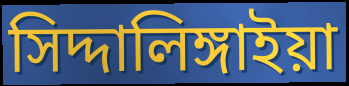
সিদ্দালিঙ্গাইয়া